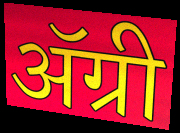
ॲग्री